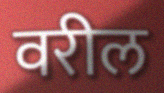
वरील